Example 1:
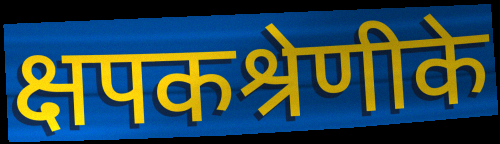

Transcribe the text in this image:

क्षपकश्रेणीके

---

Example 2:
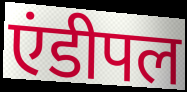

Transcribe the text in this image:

एंडीपल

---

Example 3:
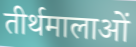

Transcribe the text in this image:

तीर्थमालाओं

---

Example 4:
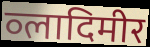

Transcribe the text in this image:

व्‍लादिमीर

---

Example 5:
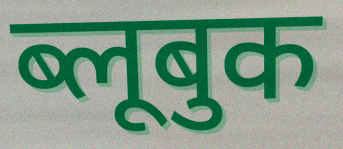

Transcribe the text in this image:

ब्लूबुक